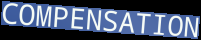
COMPENSATION